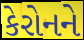
કેરોનને